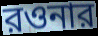
রওনার